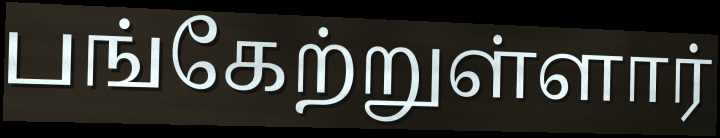
பங்கேற்றுள்ளார்